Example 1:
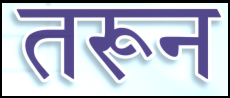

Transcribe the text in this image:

तरून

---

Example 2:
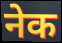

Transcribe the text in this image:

नेक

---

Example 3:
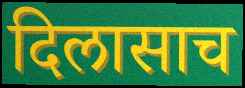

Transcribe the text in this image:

दिलासाच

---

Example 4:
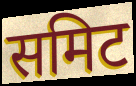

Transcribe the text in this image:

समिट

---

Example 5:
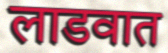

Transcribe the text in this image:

लाडवात